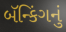
બૅન્કિંગનું